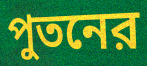
পুতনের